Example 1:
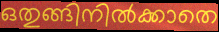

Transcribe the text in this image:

ഒതുങ്ങിനിൽക്കാതെ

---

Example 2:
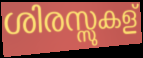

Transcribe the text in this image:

ശിരസ്സുകള്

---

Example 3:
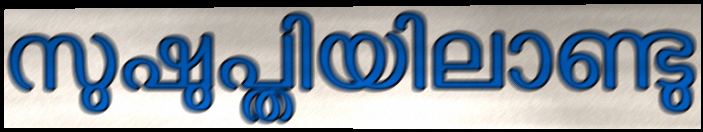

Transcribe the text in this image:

സുഷുപ്തിയിലാണ്ടു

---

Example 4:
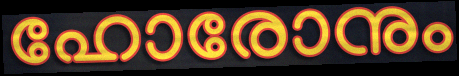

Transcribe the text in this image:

ഹോരോനും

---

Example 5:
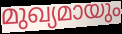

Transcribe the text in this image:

മുഖ്യമായും